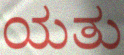
ಯತು